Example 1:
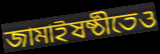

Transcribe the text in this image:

জামাইষষ্ঠীতেও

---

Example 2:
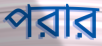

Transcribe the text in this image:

পরার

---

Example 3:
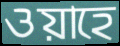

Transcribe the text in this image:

ওয়াহে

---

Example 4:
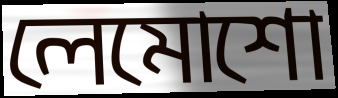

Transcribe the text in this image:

লেমোশো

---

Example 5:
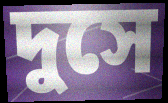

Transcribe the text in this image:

দুসে